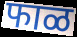
फाळ